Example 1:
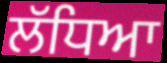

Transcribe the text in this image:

ਲੱਧਿਆ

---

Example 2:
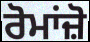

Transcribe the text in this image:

ਰੋਮਾਂਜ਼ੋ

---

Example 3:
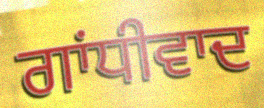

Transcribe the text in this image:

ਗਾਂਧੀਵਾਦ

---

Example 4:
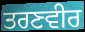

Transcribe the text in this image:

ਤਰਣਵੀਰ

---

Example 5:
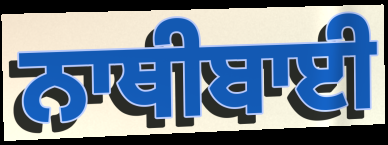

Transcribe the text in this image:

ਨਾਥੀਬਾਈ